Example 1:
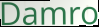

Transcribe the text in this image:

Damro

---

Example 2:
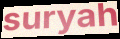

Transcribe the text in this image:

suryah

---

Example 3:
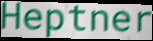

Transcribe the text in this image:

Heptner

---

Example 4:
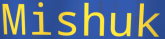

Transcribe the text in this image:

Mishuk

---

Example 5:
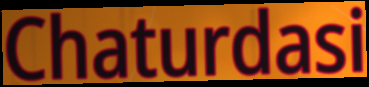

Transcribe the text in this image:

Chaturdasi